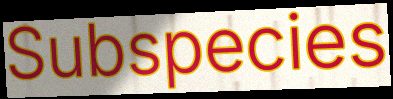
Subspecies